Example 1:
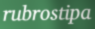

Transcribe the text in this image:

rubrostipa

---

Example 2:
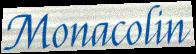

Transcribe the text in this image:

Monacolin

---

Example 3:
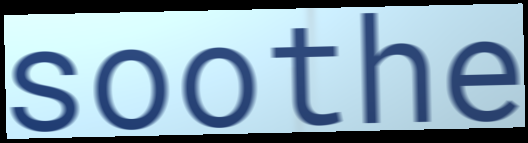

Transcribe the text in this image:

soothe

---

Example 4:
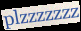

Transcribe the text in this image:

plzzzzzzz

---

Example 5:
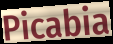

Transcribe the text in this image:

Picabia